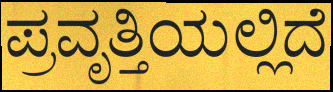
ಪ್ರವೃತ್ತಿಯಲ್ಲಿದೆ